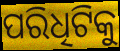
ପରିଧିଟିକୁ